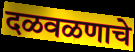
दळवळणाचे